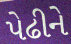
પેઢીને